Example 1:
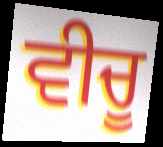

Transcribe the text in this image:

ਵੀਚੂ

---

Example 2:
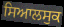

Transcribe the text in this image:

ਸਿਆਲਸੁਕ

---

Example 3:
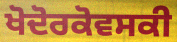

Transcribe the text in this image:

ਖੋਦੋਰਕੋਵਸਕੀ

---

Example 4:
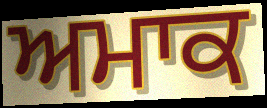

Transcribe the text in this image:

ਅਮਾਕ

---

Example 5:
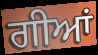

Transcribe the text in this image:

ਗੀਆਂ